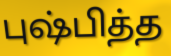
புஷ்பித்த